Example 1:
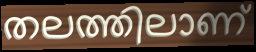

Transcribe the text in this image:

തലത്തിലാണ്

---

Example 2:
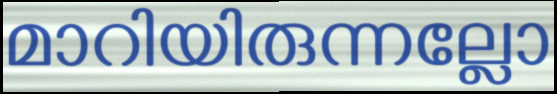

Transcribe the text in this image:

മാറിയിരുന്നല്ലോ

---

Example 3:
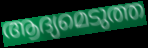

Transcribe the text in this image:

ആദ്യമെടുത്ത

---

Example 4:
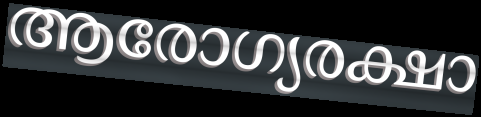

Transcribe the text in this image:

ആരോഗ്യരക്ഷാ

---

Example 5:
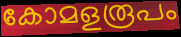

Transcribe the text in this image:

കോമളരൂപം